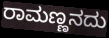
ರಾಮಣ್ಣನದು